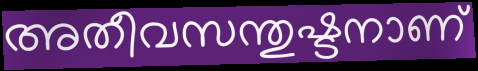
അതീവസന്തുഷ്ടനാണ്